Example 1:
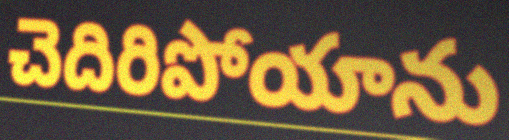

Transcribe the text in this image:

చెదిరిపోయాను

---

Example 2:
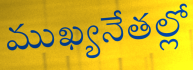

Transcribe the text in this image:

ముఖ్యనేతల్లో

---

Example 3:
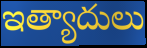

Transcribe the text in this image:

ఇత్యాదులు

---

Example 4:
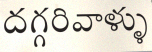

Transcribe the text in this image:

దగ్గరివాళ్ళు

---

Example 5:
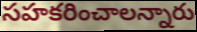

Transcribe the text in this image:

సహకరించాలన్నారు